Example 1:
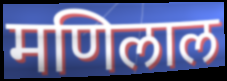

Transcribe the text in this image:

मणिलाल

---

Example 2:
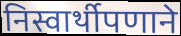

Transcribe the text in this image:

निस्वार्थीपणाने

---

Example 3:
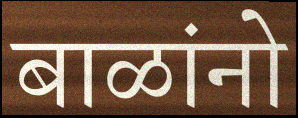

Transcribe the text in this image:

बाळांनो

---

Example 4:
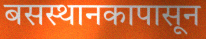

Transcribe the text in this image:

बसस्थानकापासून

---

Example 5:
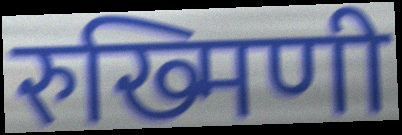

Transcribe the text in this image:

रुख्मिणी